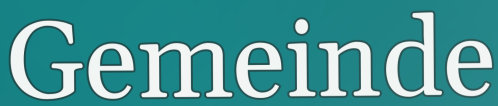
Gemeinde